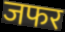
जफर